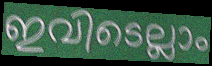
ഇവിടെല്ലാം